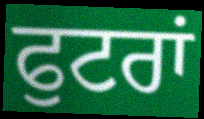
ਫੁਟਰਾਂ